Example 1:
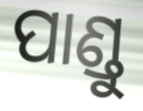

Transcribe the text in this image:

ପାଣ୍ଡୁ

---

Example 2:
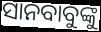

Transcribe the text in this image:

ସାନବାବୁଙ୍କୁ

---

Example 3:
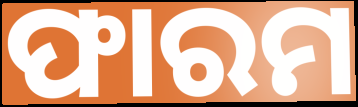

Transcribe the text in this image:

ଫାରମ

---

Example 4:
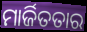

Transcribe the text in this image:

ମାର୍ଜିତତାର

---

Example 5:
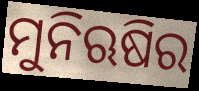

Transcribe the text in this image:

ମୁନିଋଷିର